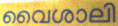
വൈശാലി